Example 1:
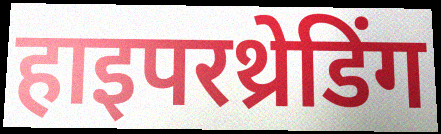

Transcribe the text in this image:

हाइपरथ्रेडिंग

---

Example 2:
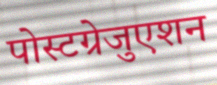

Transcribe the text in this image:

पोस्टग्रेजुएशन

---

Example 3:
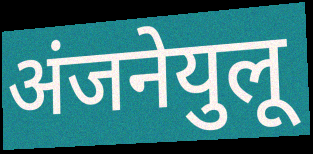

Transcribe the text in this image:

अंजनेयुलू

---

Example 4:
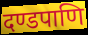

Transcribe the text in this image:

दण्डपाणि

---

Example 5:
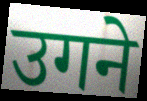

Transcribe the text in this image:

उगने